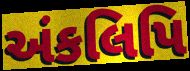
અંકલિપિ